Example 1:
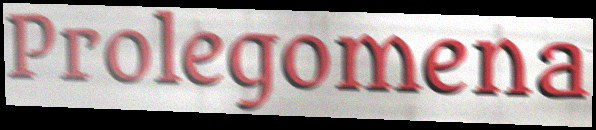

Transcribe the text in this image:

Prolegomena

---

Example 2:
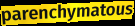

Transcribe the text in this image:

parenchymatous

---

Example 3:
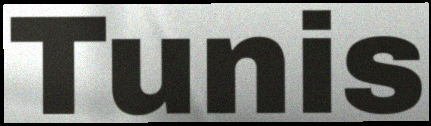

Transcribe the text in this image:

Tunis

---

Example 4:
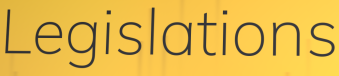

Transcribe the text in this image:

Legislations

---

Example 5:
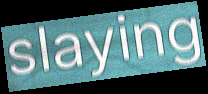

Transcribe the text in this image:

slaying